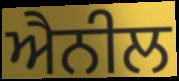
ਐਨੀਲ